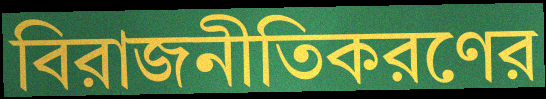
বিরাজনীতিকরণের